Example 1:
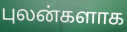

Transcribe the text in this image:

புலன்களாக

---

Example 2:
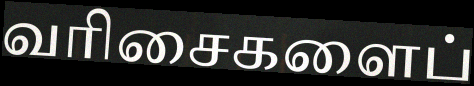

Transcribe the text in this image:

வரிசைகளைப்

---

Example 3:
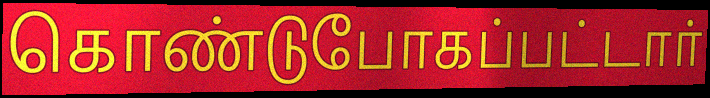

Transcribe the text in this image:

கொண்டுபோகப்பட்டார்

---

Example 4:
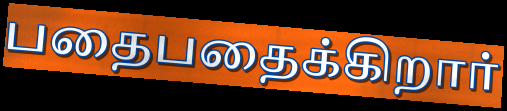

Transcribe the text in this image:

பதைபதைக்கிறார்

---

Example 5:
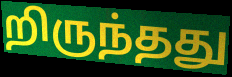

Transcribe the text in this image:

றிருந்தது